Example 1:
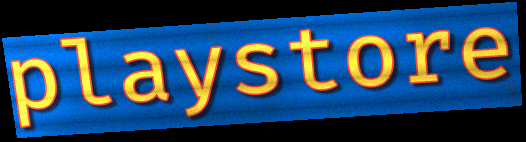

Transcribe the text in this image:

playstore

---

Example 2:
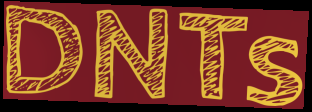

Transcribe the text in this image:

DNTs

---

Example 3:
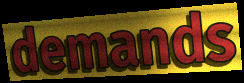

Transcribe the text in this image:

demands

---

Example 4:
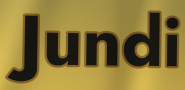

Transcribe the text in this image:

Jundi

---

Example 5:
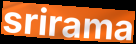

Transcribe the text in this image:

srirama